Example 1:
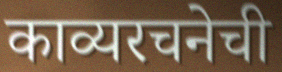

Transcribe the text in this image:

काव्यरचनेची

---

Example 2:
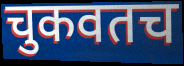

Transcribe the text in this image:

चुकवतच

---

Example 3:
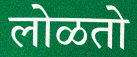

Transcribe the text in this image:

लोळतो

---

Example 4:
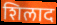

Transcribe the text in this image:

शिलाद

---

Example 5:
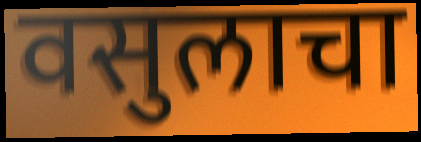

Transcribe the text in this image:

वसुलाचा